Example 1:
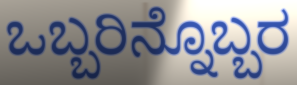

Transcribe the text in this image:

ಒಬ್ಬರಿನ್ನೊಬ್ಬರ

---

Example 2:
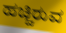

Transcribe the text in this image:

ಹಚ್ಚಿರುವ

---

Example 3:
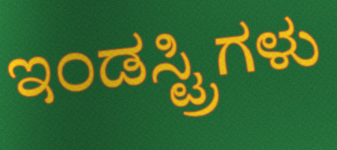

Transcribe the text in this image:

ಇಂಡಸ್ಟ್ರಿಗಳು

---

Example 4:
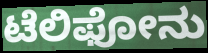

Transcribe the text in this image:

ಟೆಲಿಫೋನು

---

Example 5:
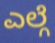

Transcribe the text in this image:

ಎಲ್ಗೆ